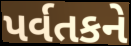
પર્વતકને